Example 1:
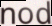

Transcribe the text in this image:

nod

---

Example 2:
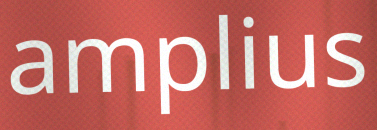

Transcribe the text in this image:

amplius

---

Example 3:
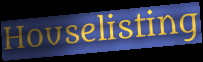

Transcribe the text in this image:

Houselisting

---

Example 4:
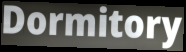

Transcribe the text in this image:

Dormitory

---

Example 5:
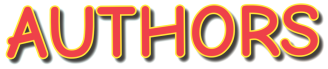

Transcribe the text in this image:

AUTHORS